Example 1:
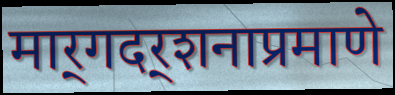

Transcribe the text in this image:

मार्गदर्शनाप्रमाणे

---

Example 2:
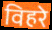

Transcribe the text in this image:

विहरे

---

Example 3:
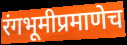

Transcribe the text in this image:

रंगभूमीप्रमाणेच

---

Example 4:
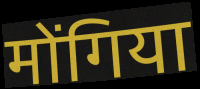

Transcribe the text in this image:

मोंगिया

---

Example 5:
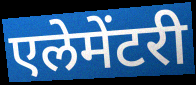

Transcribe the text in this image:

एलेमेंटरी